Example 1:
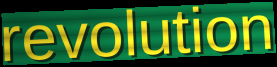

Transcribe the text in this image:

revolution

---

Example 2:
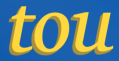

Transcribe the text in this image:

tou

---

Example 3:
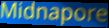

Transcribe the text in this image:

Midnapore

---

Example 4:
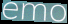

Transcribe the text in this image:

emo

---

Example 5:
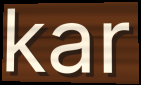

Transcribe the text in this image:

kar